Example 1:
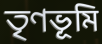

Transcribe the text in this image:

তৃণভূমি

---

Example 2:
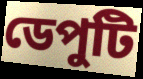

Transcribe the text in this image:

ডেপুটি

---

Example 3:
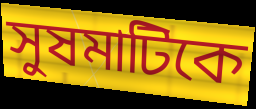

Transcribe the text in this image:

সুষমাটিকে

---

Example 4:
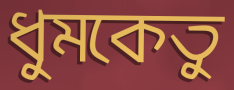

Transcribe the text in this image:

ধুমকেতু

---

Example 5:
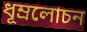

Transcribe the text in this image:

ধূম্রলোচন